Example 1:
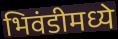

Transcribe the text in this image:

भिवंडीमध्ये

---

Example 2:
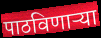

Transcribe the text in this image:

पाठविणाऱ्या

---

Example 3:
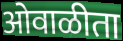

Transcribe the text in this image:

ओवाळीता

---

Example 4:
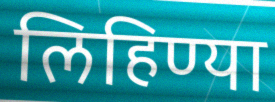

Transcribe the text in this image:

लिहिण्या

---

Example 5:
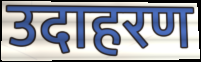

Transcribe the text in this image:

उदाहरण